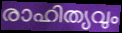
രാഹിത്യവും